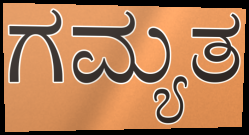
ಗಮ್ಯತ